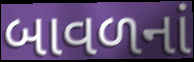
બાવળનાં